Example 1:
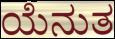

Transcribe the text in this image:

ಯೆನುತ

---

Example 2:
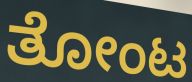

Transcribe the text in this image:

ತೋಂಟ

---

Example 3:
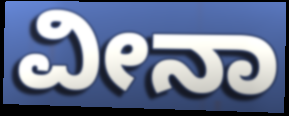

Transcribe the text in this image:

ವೀನಾ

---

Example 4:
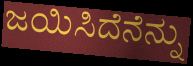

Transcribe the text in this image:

ಜಯಿಸಿದೆನೆನ್ನು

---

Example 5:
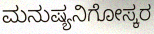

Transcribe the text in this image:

ಮನುಷ್ಯನಿಗೋಸ್ಕರ